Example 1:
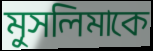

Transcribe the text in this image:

মুসলিমাকে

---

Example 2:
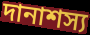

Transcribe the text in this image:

দানাশস্য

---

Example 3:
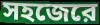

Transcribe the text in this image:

সহজেরে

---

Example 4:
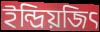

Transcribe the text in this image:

ইন্দ্রিয়জিৎ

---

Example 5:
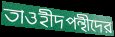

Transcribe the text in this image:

তাওহীদপন্থীদের